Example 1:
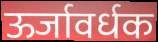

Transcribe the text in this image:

ऊर्जावर्धक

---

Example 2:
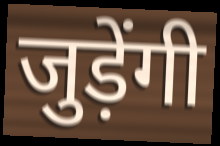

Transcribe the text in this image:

जुड़ेंगी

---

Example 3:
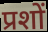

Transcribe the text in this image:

प्रशों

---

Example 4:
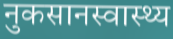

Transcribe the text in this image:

नुकसानस्वास्थ्य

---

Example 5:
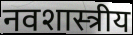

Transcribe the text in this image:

नवशास्त्रीय